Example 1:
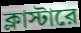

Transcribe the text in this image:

ক্লাস্টারে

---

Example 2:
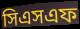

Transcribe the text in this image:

সিএসএফ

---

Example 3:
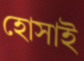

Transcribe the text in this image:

হোসাই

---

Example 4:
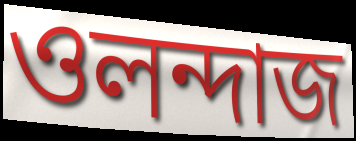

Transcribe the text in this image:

ওলন্দাজ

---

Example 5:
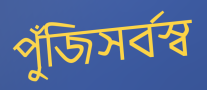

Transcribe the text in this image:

পুঁজিসর্বস্ব